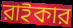
রাইকার